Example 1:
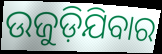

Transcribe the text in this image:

ଉଜୁଡ଼ିଯିବାର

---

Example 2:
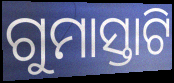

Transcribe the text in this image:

ଗୁମାସ୍ତାଟି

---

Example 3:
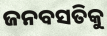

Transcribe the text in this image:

ଜନବସତିକୁ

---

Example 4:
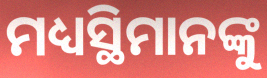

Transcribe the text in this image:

ମଧ୍ୟସ୍ଥିମାନଙ୍କୁ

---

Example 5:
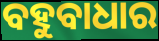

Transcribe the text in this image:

ବହୁବାଧାର